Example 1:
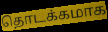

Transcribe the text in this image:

தொடக்கமாக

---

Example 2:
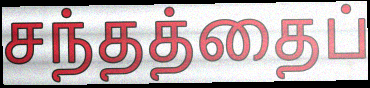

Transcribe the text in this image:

சந்தத்தைப்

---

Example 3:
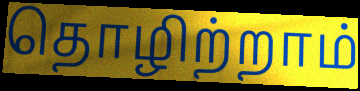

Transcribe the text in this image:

தொழிற்றாம்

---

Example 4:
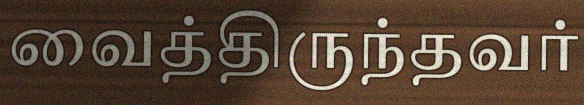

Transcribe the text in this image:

வைத்திருந்தவர்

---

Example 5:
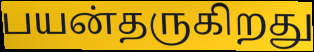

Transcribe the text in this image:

பயன்தருகிறது